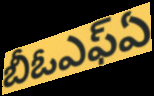
బీఓఎఫ్ఏ